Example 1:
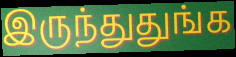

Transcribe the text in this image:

இருந்துதுங்க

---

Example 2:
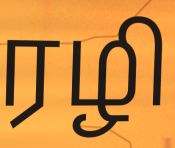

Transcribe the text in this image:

ரழி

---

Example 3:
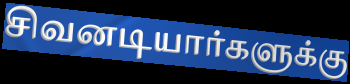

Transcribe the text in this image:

சிவனடியார்களுக்கு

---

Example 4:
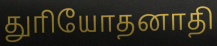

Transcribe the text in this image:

துரியோதனாதி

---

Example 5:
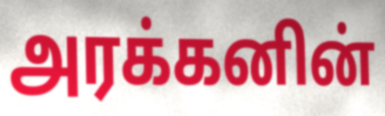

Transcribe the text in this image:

அரக்கனின்